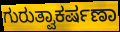
ಗುರುತ್ವಾಕರ್ಷಣಾ